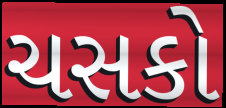
ચસકો